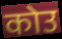
कोउ